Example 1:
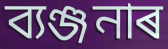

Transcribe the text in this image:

ব্যঞ্জনাৰ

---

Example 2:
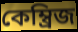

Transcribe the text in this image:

কেম্ব্ৰিজ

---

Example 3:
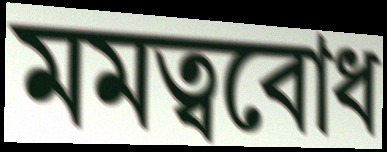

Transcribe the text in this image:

মমত্ববোধ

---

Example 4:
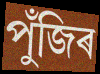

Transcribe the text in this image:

পুঁজিৰ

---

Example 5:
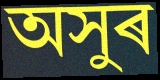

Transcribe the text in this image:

অসুৰ